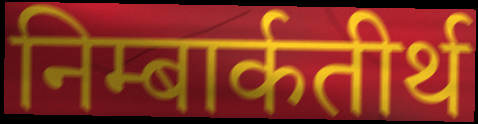
निम्बार्कतीर्थ